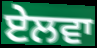
ਏਲਵਾ